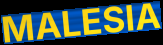
MALESIA